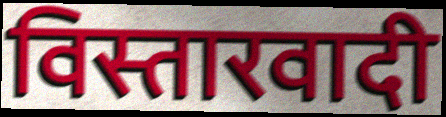
विस्तारवादी